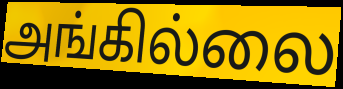
அங்கில்லை